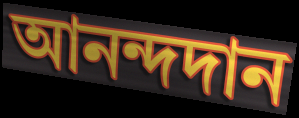
আনন্দদান